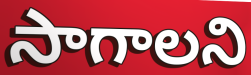
సాగాలని